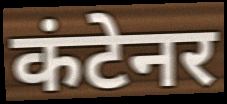
कंटेनर